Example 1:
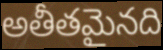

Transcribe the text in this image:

అతీతమైనది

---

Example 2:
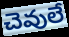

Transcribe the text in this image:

చెవులే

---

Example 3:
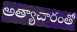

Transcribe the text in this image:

అత్యాచారంతో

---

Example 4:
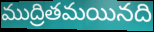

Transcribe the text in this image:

ముద్రితమయినది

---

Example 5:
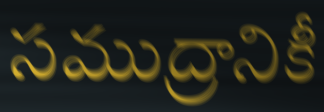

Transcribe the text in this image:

సముద్రానికీ